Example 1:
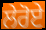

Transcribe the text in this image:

ਲੇਰੋਏ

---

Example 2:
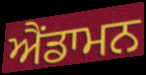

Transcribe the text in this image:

ਐਂਡਾਮਨ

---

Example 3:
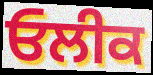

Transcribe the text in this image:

ਓਲੀਕ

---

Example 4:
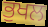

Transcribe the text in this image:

ਭੁਖਲ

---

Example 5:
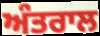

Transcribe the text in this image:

ਅੰਤਰਾਲ